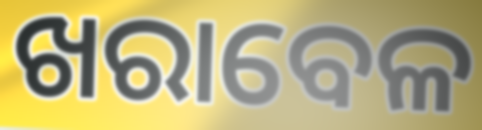
ଖରାବେଳ